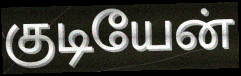
குடியேன்